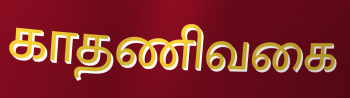
காதணிவகை